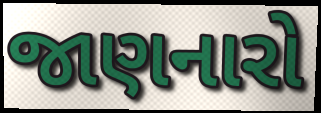
જાણનારો